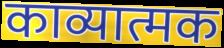
काव्यात्मक